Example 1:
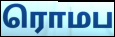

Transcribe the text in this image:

ரொமப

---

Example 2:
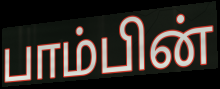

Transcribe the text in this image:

பாம்பின்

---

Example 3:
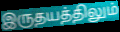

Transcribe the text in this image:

இருதயத்திலும்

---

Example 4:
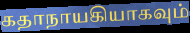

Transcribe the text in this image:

கதாநாயகியாகவும்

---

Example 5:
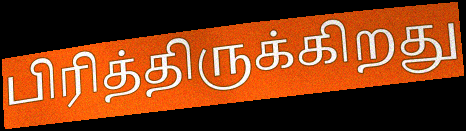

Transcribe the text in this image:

பிரித்திருக்கிறது